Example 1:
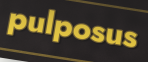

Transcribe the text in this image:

pulposus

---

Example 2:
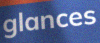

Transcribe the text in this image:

glances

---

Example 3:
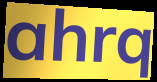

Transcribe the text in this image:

ahrq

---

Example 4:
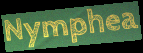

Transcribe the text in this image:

Nymphea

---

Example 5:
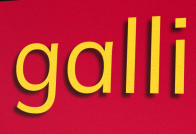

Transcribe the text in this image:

galli